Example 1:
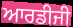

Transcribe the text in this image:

ਆਰਡੀਜੀ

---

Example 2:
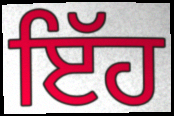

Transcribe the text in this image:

ਇੱਹ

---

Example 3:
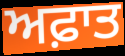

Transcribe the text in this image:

ਅਫ਼ਾਤ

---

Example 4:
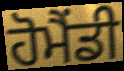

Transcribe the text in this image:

ਹੋਮੈਂਡੀ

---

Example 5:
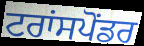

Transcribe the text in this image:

ਟਰਾਂਸਪੋਂਡਰ